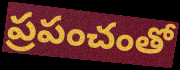
ప్రపంచంతో